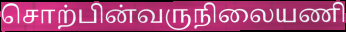
சொற்பின்வருநிலையணி